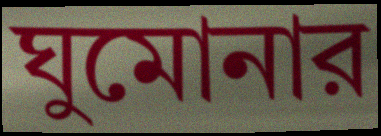
ঘুমোনার